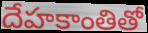
దేహకాంతితో